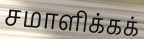
சமாளிக்கக்